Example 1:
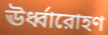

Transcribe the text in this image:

ঊর্ধ্বারোহণ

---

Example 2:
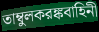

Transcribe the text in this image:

তাম্বুলকরঙ্কবাহিনী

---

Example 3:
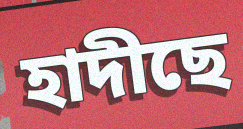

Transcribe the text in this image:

হাদীছে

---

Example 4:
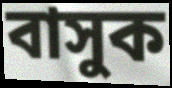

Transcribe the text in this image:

বাসুক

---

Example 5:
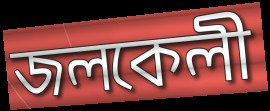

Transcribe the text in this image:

জলকেলী